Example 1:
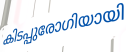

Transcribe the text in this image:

കിടപ്പുരോഗിയായി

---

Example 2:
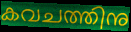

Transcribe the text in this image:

കവചത്തിനു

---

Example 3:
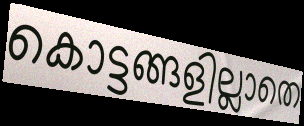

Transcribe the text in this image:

കൊട്ടങ്ങളില്ലാതെ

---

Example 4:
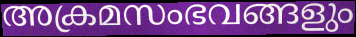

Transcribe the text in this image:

അക്രമസംഭവങ്ങളും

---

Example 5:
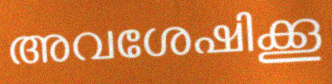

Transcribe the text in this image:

അവശേഷിക്കൂ